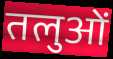
तलुओं